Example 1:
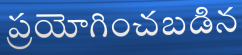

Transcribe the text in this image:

ప్రయోగించబడిన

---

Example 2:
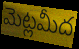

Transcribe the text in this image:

మెట్లమీద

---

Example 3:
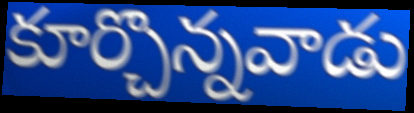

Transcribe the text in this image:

కూర్చొన్నవాడు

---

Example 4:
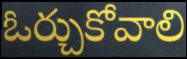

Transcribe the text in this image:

ఓర్చుకోవాలి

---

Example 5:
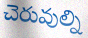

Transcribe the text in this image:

చెరువుల్ని